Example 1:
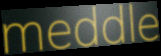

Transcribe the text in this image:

meddle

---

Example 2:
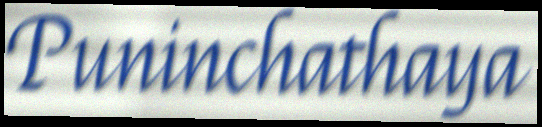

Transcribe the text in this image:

Puninchathaya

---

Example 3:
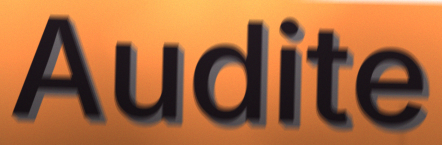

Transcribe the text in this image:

Audite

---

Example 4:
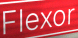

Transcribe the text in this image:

Flexor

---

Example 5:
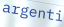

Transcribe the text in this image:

argenti